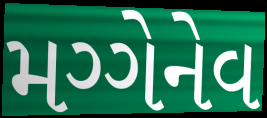
મગ્ગેનેવ